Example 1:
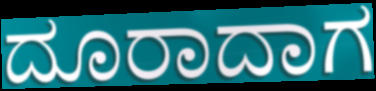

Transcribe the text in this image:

ದೂರಾದಾಗ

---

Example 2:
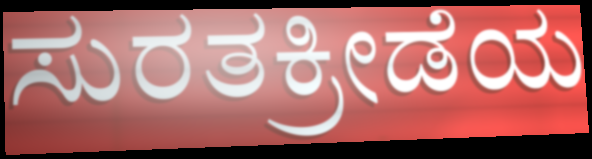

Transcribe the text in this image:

ಸುರತಕ್ರೀಡೆಯ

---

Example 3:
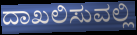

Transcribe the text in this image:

ದಾಖಲಿಸುವಲ್ಲಿ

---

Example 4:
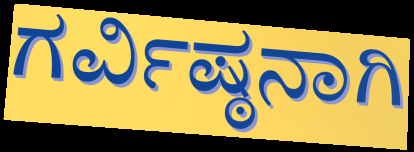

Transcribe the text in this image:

ಗರ್ವಿಷ್ಠನಾಗಿ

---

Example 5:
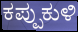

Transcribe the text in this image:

ಕಪ್ಪುಕುಳಿ